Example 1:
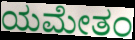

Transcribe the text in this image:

ಯಮೇತಂ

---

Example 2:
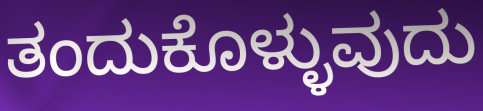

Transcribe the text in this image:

ತಂದುಕೊಳ್ಳುವುದು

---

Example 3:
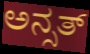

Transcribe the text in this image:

ಅನ್ಸತ್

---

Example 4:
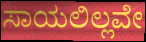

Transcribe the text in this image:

ಸಾಯಲಿಲ್ಲವೇ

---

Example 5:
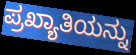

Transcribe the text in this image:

ಪ್ರಖ್ಯಾತಿಯನ್ನು